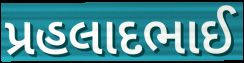
પ્રહલાદભાઈ